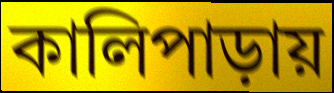
কালিপাড়ায়